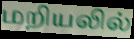
மறியலில்